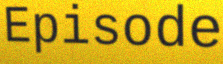
Episode